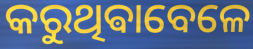
କରୁଥିଵାବେଳେ